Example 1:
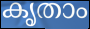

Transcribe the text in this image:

കൃതാം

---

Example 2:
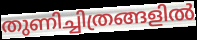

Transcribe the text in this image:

തുണിച്ചിത്രങ്ങളിൽ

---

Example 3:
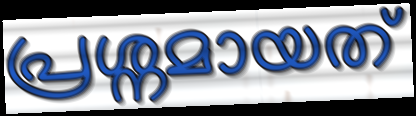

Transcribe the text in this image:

പ്രശ്നമായത്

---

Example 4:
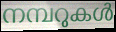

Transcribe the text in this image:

നമ്പറുകൾ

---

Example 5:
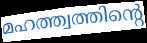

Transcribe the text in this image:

മഹത്ത്വത്തിന്റെ